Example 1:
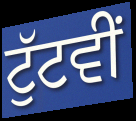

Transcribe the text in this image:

ਟੁੱਟਵੀਂ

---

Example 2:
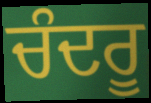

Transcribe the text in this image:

ਚੰਦਰੂ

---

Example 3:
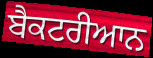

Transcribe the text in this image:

ਬੈਕਟਰੀਆਨ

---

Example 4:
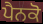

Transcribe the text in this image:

ਪੈਨਕੋ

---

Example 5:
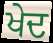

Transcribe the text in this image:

ਖੇਦ